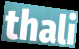
thali